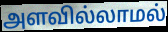
அளவில்லாமல்